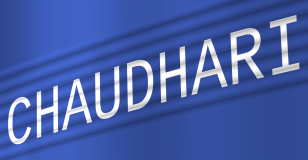
CHAUDHARI